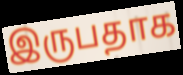
இருபதாக